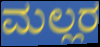
ಮಲ್ಲರ